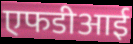
एफडीआई